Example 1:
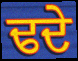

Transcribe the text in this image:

ਢਦੇ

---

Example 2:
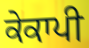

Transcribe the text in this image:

ਕੇਕਾਪੀ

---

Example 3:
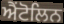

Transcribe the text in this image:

ਐਂਟੋਲਿਨ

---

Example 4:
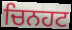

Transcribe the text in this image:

ਚਿਨਹਟ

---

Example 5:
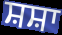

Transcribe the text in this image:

ਸ਼ਸ਼ਾ